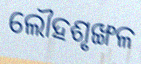
ଲୌହଶୃଙ୍ଖଳ